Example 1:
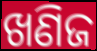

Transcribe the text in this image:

ଖଣିଜ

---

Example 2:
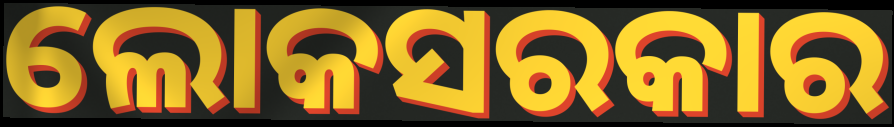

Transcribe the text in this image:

ଲୋକସରକାର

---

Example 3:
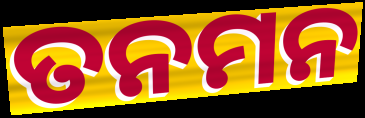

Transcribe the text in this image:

ତନମନ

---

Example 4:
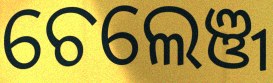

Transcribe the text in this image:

ଚେଲେଞ୍ଜ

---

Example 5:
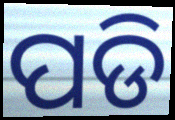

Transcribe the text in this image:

ପଡି